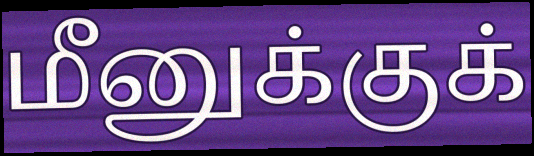
மீனுக்குக்